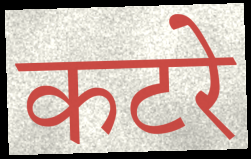
कटरे